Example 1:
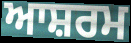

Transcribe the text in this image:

ਆਸ਼ਰਮ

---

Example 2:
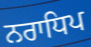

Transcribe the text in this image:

ਨਰਾਧਿਪ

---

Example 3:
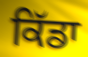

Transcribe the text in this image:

ਕਿੱਡਾ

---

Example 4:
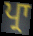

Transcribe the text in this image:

ਪ੍ਰਾ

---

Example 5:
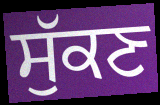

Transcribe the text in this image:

ਸੁੱਕਣ